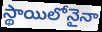
స్థాయిలోనైనా